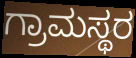
ಗ್ರಾಮಸ್ಥರ